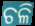
ଚଳି